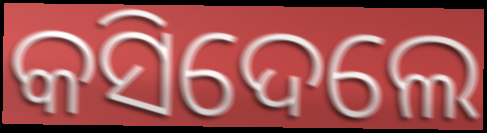
କସିଦେଲେ